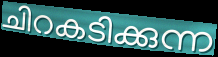
ചിറകടിക്കുന്ന